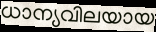
ധാന്യവിലയായ